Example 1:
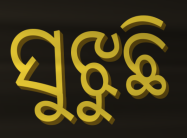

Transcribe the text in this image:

ସୁଝୁଛି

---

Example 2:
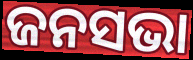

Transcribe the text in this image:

ଜନସଭା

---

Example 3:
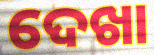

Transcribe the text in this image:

ଦେଖା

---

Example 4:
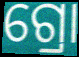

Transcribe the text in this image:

ଗ୍ରୋ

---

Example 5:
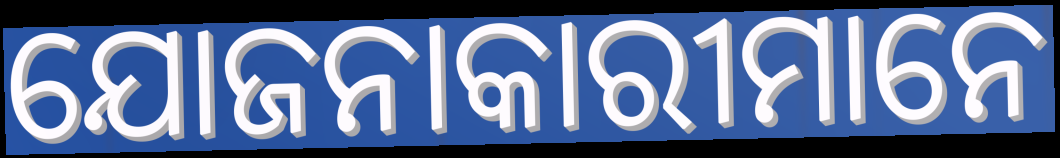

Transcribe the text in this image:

ଯୋଜନାକାରୀମାନେ